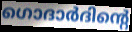
ഗൊദാർദിന്റെ